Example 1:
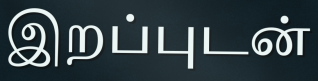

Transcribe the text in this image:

இறப்புடன்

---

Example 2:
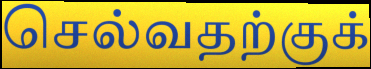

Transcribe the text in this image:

செல்வதற்குக்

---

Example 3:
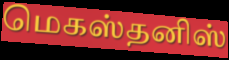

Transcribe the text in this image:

மெகஸ்தனிஸ்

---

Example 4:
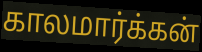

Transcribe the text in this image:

காலமார்க்கன்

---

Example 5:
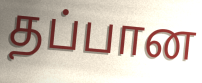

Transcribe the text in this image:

தப்பான